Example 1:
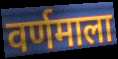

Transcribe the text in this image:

वर्णमाला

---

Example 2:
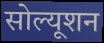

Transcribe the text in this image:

सोल्‍यूशन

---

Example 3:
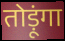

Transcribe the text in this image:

तोड़ूंगा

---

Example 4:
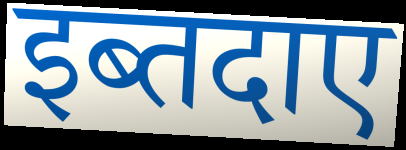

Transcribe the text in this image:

इब्तदाए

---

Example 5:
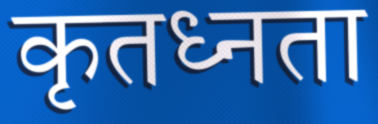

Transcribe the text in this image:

कृतध्नता